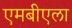
एमबीएला